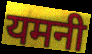
यमनी